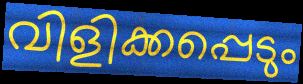
വിളിക്കപ്പെടും